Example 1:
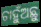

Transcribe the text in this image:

ଚାହୁଁଅଛୁ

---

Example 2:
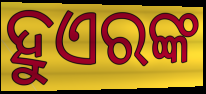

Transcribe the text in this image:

ହୁଏରଙ୍କ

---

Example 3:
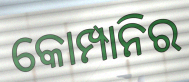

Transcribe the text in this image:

କୋମ୍ପାନିର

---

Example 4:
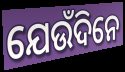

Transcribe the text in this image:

ଯେଉଁଦିନେ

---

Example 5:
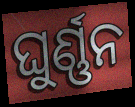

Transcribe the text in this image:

ଘୁର୍ଣ୍ଣନ